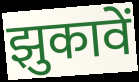
झुकावें